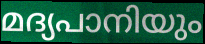
മദ്യപാനിയും